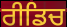
ਰੀਡਿਚ